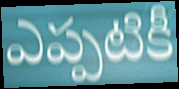
ఎప్పటికీ